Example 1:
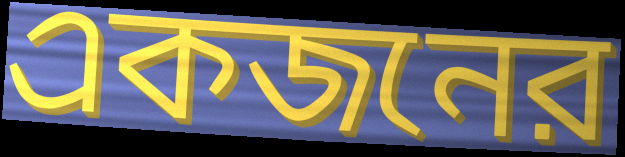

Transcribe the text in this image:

একজনের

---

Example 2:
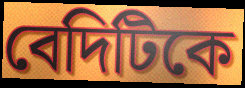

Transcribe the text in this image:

বেদিটিকে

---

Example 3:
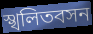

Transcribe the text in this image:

স্খলিতবসন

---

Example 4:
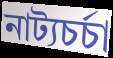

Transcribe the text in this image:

নাট্যচর্চা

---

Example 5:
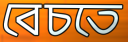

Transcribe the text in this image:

বেচতে